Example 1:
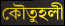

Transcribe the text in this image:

কৌতুহলী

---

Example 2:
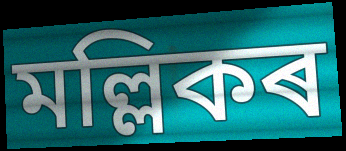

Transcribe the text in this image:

মল্লিকৰ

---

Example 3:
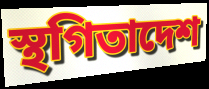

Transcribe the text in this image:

স্থগিতাদেশ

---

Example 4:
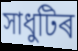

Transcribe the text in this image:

সাধুটিৰ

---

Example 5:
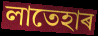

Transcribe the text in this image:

লাতেহাৰ